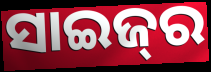
ସାଇଜ୍‌ର